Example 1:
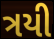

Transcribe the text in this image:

ત્રયી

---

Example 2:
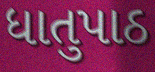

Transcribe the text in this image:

ધાતુપાઠ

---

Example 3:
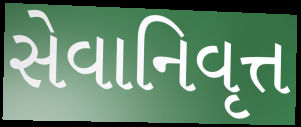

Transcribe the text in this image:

સેવાનિવૃત્ત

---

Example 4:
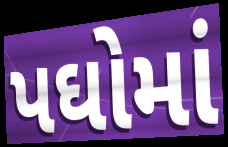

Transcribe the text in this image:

પઘોમાં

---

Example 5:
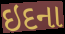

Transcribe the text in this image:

ઇદના